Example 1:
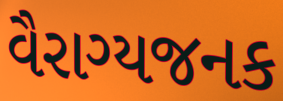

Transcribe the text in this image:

વૈરાગ્યજનક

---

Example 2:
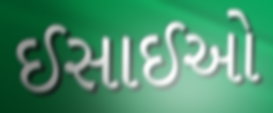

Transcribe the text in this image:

ઈસાઈઓ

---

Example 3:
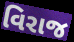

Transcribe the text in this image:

વિરાજ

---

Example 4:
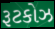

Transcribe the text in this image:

રૂટકોઝ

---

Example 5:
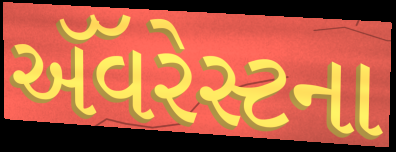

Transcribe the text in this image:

ઍૅવરેસ્ટના